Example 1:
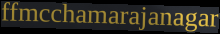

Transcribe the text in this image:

ffmcchamarajanagar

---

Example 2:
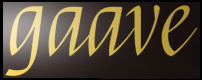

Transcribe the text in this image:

gaave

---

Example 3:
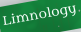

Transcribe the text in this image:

Limnology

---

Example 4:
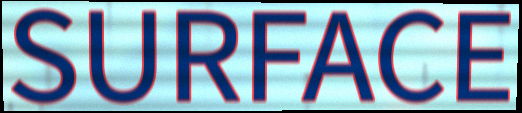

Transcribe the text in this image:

SURFACE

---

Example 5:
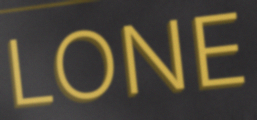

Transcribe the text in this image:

LONE